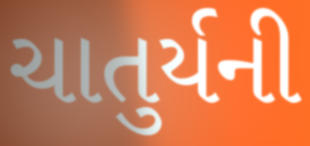
ચાતુર્યની